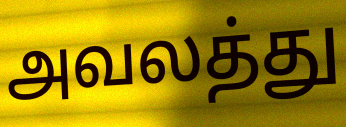
அவலத்து